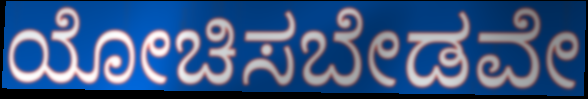
ಯೋಚಿಸಬೇಡವೇ